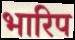
भारिप